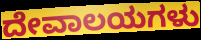
ದೇವಾಲಯಗಳು